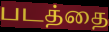
படத்தை